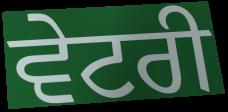
ਵੇਟਰੀ